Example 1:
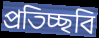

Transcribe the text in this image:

প্রতিচ্ছবি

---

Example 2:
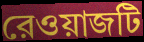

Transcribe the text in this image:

রেওয়াজটি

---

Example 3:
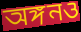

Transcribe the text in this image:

অঙ্গনও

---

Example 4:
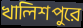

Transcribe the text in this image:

খালিশপুরে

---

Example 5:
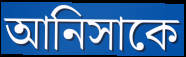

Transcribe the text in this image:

আনিসাকে